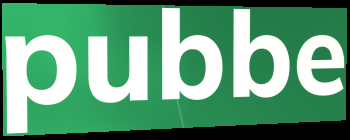
pubbe